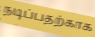
நடிப்பதற்காக